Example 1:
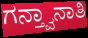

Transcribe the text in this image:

ಗನ್ತ್ವಾನಾತಿ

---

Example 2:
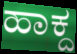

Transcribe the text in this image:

ಹಾಕ್ದ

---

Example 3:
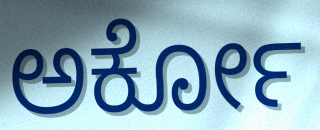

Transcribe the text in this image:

ಅರ್ಕೋ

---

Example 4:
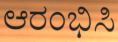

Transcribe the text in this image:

ಆರಂಭಿಸಿ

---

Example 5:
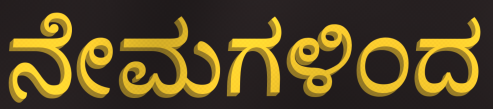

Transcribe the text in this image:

ನೇಮಗಳಿಂದ